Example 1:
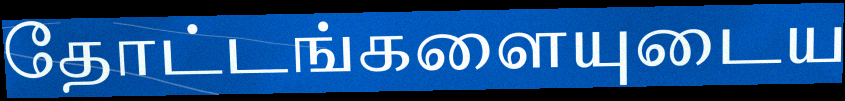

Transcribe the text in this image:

தோட்டங்களையுடைய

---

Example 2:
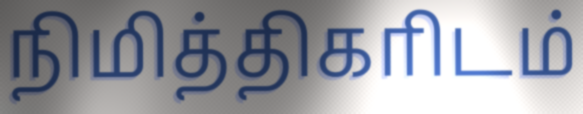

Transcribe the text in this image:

நிமித்திகரிடம்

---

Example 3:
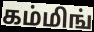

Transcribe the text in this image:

கம்மிங்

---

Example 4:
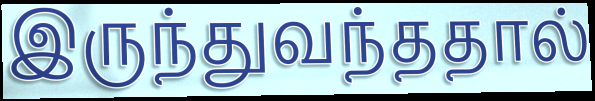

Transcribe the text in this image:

இருந்துவந்ததால்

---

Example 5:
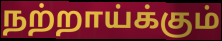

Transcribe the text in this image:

நற்றாய்க்கும்